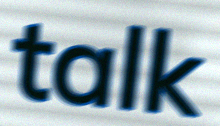
talk